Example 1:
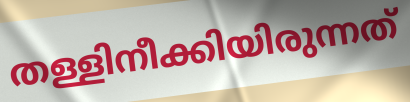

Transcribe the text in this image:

തള്ളിനീക്കിയിരുന്നത്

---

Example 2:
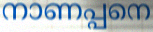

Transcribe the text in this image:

നാണപ്പനെ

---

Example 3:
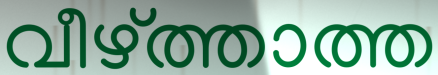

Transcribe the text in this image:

വീഴ്ത്താത്ത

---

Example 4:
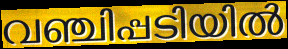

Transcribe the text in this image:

വഞ്ചിപ്പടിയിൽ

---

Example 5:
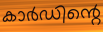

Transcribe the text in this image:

കാർഡിന്റെ